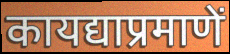
कायद्याप्रमाणें